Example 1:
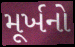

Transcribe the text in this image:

મૂર્ખનો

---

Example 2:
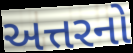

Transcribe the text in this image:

અત્તરનો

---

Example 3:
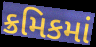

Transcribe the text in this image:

ક્રમિકમાં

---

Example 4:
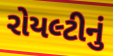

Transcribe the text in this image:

રોયલ્ટીનું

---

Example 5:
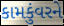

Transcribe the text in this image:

કામકુંવરને